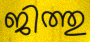
ജിത്തു